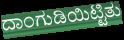
ದಾಂಗುಡಿಯಿಟ್ಟಿತು